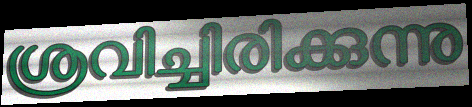
ശ്രവിച്ചിരിക്കുന്നു